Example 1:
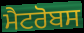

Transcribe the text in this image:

ਮੈਟਰੋਬਸ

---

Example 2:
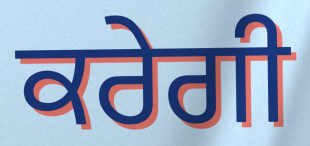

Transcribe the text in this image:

ਕਰੇਗੀ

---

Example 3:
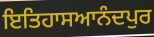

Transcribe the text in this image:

ਇਤਿਹਾਸਆਨੰਦਪੁਰ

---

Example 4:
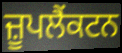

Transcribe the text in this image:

ਜ਼ੂਪਲੈਂਕਟਨ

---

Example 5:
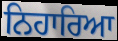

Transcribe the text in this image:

ਨਿਹਾਰਿਆ